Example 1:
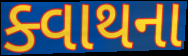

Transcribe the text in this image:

ક્વાથના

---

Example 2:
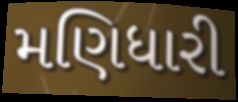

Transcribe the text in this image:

મણિધારી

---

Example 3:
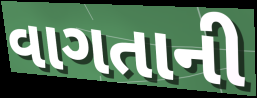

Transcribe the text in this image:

વાગતાની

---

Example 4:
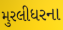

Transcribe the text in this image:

મુરલીધરના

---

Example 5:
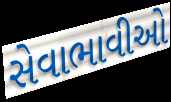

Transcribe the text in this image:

સેવાભાવીઓ